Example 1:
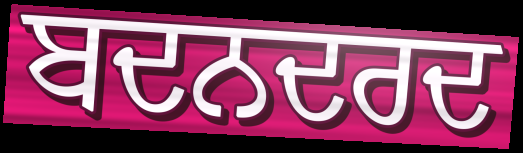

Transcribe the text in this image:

ਬਦਨਦਰਦ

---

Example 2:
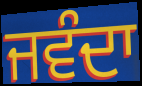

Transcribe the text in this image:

ਜਵੰਦਾ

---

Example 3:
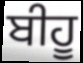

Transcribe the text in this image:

ਬੀਹੂ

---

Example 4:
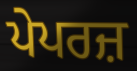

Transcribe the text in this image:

ਪੇਪਰਜ਼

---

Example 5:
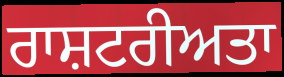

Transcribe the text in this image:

ਰਾਸ਼ਟਰੀਅਤਾ